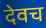
देवच